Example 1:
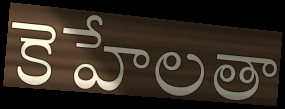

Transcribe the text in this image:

కెహేలతా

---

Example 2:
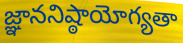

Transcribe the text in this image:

జ్ఞాననిష్ఠాయోగ్యతా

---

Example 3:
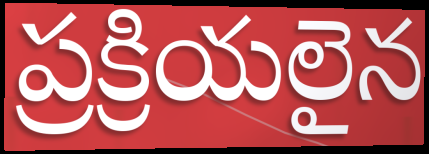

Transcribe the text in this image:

ప్రక్రియలైన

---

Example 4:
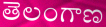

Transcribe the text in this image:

తెలంగాణ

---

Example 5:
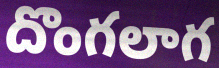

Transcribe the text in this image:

దొంగలాగ